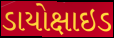
ડાયોક્ષાઇડ